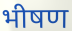
भीषण